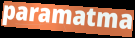
paramatma